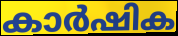
കാർഷിക